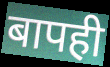
बापही